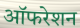
ऑफरेशन